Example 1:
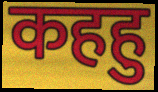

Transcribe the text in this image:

कहहु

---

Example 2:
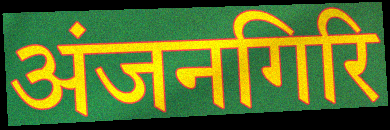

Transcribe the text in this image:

अंजनगिरि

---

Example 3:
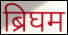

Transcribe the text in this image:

ब्रिघम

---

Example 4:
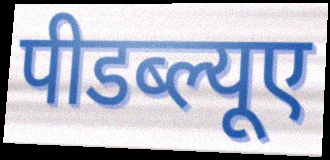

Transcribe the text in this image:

पीडब्ल्यूए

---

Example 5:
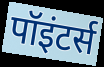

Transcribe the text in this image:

पॉइंटर्स